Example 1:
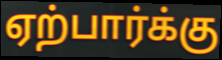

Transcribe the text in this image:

ஏற்பார்க்கு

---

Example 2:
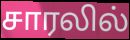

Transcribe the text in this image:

சாரலில்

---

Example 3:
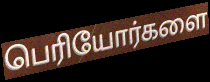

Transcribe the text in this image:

பெரியோர்களை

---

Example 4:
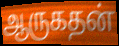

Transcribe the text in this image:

ஆருகதன்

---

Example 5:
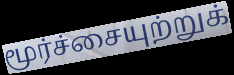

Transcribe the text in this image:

மூர்ச்சையுற்றுக்